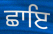
ਛਾਇ